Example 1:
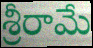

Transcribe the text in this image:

శ్రీరామే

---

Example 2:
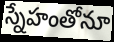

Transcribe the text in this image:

స్నేహంతోనూ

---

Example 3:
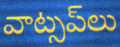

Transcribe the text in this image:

వాట్సప్‌లు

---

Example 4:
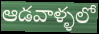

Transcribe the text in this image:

ఆడవాళ్ళలో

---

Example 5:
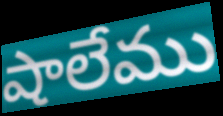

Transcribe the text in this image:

షాలేము